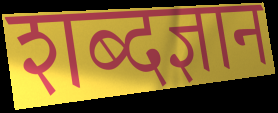
शब्दज्ञान